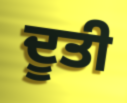
ਦੂਤੀ